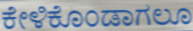
ಕೇಳಿಕೊಂಡಾಗಲೂ